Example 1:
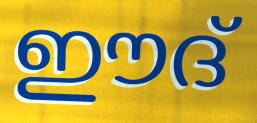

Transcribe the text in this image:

ഈദ്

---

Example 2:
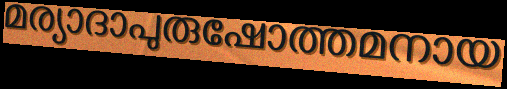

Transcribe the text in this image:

മര്യാദാപുരുഷോത്തമനായ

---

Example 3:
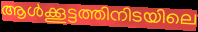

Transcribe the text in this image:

ആൾക്കൂട്ടത്തിനിടയിലെ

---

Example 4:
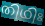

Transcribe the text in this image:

തിഥിഃ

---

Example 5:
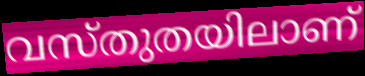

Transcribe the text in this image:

വസ്തുതയിലാണ്